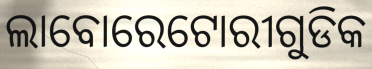
ଲାବୋରେଟୋରୀଗୁଡିକ